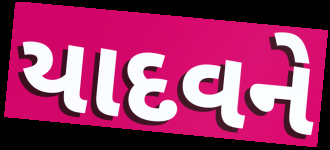
યાદવને